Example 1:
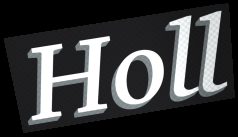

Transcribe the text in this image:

Holl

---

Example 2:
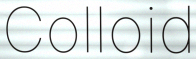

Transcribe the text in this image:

Colloid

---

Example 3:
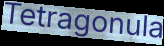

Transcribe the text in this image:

Tetragonula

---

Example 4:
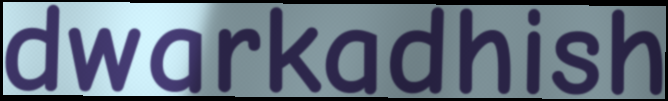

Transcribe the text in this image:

dwarkadhish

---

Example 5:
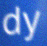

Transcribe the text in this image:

dy